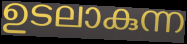
ഉടലാകുന്ന